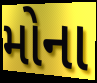
મોના